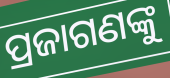
ପ୍ରଜାଗଣଙ୍କୁ